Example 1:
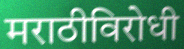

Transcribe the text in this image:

मराठीविरोधी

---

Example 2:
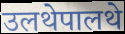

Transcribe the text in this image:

उलथेपालथे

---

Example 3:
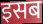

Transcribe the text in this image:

इसब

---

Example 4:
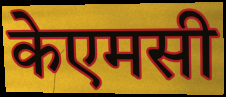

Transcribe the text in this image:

केएमसी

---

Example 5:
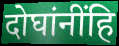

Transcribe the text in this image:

दोघांनींहि